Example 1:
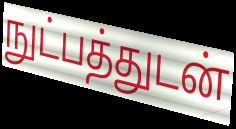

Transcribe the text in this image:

நுட்பத்துடன்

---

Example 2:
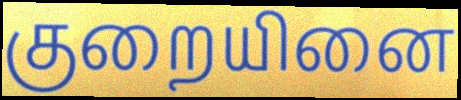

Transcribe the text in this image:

குறையினை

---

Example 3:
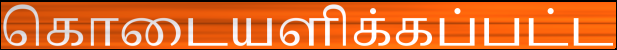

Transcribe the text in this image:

கொடையளிக்கப்பட்ட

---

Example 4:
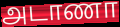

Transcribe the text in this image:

அடாணா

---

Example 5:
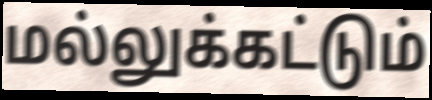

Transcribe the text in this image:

மல்லுக்கட்டும்